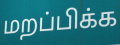
மறப்பிக்க